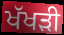
ਖੱਖੜੀ